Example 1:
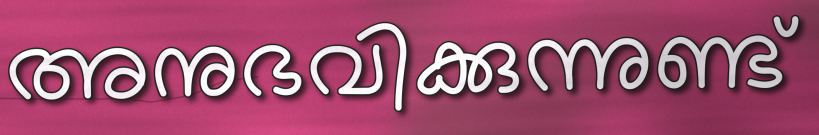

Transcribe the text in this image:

അനുഭവിക്കുന്നുണ്ട്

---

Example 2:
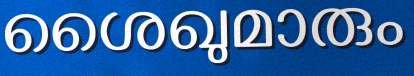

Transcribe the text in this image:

ശൈഖുമാരും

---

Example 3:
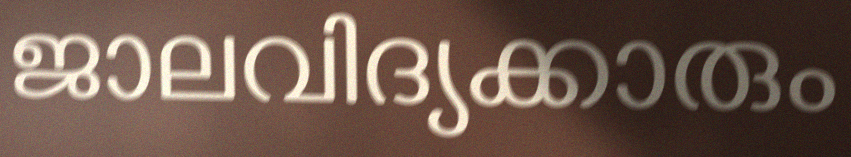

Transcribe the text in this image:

ജാലവിദ്യക്കാരും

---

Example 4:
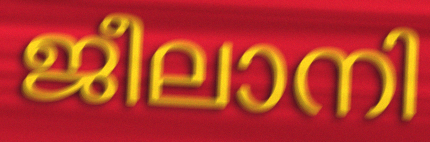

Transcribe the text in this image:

ജീലാനി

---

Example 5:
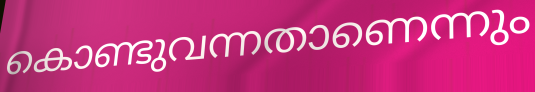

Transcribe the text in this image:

കൊണ്ടുവന്നതാണെന്നും